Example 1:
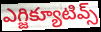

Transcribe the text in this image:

ఎగ్జిక్యూటివ్స్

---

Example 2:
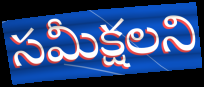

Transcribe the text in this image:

సమీక్షలని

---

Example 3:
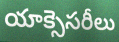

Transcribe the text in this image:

యాక్సెసరీలు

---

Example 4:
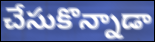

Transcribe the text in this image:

చేసుకొన్నాడా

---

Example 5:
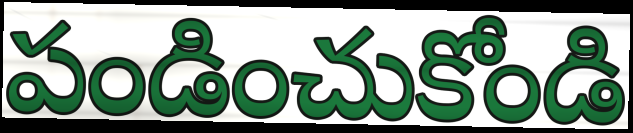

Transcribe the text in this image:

పండించుకోండి